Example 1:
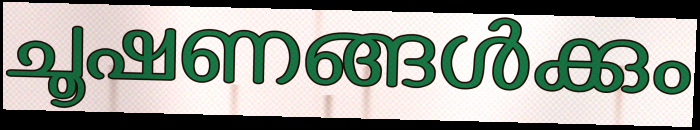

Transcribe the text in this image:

ചൂഷണങ്ങൾക്കും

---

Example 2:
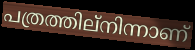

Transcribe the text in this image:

പത്രത്തില്നിന്നാണ്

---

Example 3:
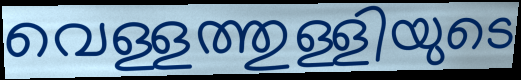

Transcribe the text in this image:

വെള്ളത്തുള്ളിയുടെ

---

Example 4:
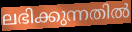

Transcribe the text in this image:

ലഭിക്കുന്നതിൽ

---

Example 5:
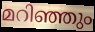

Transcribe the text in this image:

മറിഞ്ഞും